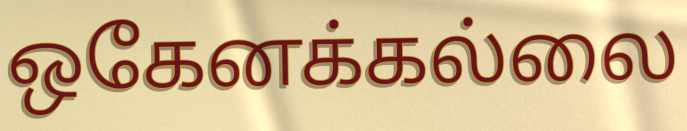
ஒகேனக்கல்லை